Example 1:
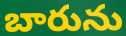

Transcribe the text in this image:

బారును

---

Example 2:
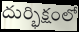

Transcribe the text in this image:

దుర్భిక్షంలో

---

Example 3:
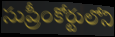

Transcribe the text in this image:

సుప్రీంకోర్టులోని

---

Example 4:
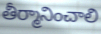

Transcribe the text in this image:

తీర్మానించాలి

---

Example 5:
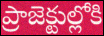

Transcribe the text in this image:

ప్రాజెక్టుల్లోకి